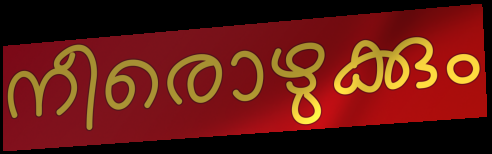
നീരൊഴുക്കും